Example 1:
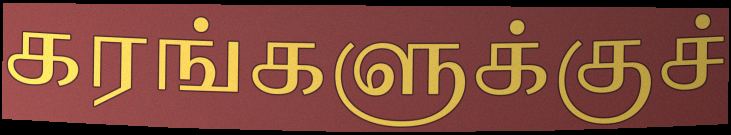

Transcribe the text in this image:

கரங்களுக்குச்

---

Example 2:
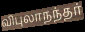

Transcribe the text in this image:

விபுலாநந்தர்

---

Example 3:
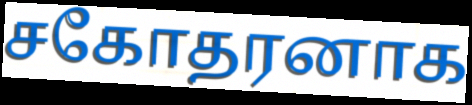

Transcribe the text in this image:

சகோதரனாக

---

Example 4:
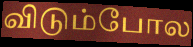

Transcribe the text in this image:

விடும்போல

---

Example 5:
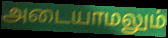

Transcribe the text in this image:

அடையாமலும்